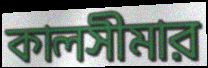
কালসীমার